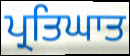
ਪ੍ਰਤਿਘਾਤ